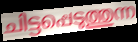
ചിട്ടപ്പെടുത്തുന്ന